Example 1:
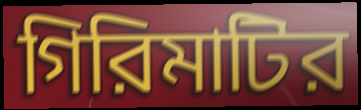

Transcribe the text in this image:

গিরিমাটির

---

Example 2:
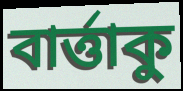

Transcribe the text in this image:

বার্ত্তাকু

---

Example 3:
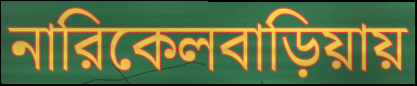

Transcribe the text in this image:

নারিকেলবাড়িয়ায়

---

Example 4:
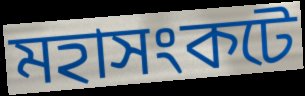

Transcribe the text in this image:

মহাসংকটে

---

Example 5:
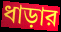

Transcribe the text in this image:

ধাড়ার